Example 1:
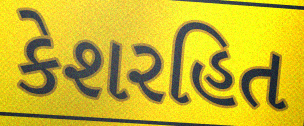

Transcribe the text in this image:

કેશરહિત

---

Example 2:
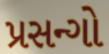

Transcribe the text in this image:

પ્રસન્ગો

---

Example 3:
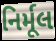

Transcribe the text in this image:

નિર્મૂલ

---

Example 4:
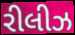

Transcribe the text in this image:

રીલીઝ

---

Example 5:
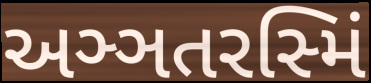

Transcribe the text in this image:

અઞ્ઞતરસ્મિં